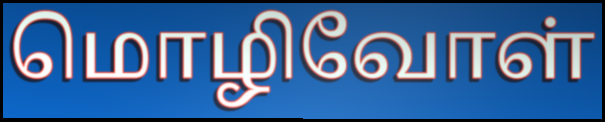
மொழிவோள்